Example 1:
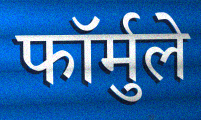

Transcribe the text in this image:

फॉर्मुले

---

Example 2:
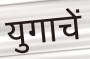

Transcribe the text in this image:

युगाचें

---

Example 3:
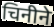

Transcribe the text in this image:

चिनीने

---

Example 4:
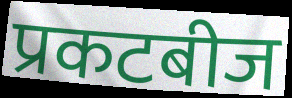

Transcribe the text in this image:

प्रकटबीज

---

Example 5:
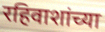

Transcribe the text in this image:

रहिवाशांच्या